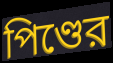
পিণ্ডের